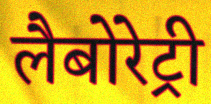
लैबोरेट्री